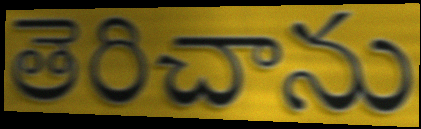
తెరిచాను